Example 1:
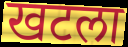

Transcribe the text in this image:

खटला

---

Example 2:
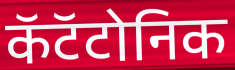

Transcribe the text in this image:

कॅटॅटोनिक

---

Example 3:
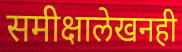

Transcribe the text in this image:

समीक्षालेखनही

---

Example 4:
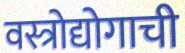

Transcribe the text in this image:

वस्त्रोद्योगाची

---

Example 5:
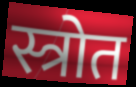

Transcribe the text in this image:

स्त्रोत